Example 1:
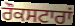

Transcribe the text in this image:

ਰੌਕਸਟਾਰਾਂ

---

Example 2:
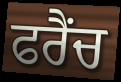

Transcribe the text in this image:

ਫਰੈਂਚ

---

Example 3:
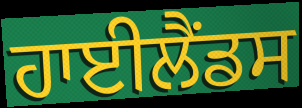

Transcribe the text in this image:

ਹਾਈਲੈਂਡਸ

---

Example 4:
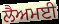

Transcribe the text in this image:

ਲੈਅਮਈ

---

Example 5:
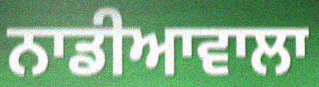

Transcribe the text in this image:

ਨਾਡੀਆਵਾਲਾ